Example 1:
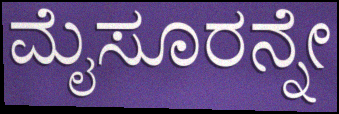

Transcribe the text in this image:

ಮೈಸೂರನ್ನೇ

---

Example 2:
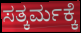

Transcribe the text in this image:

ಸತ್ಕರ್ಮಕ್ಕೆ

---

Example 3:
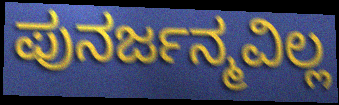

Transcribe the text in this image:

ಪುನರ್ಜನ್ಮವಿಲ್ಲ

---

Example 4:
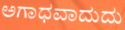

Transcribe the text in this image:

ಅಗಾಧವಾದುದು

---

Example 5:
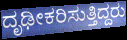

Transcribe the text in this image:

ದೃಢೀಕರಿಸುತ್ತಿದ್ದರು